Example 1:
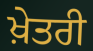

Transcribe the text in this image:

ਖ਼ੇਤਰੀ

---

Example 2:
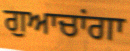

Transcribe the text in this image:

ਗੁਆਚਾਂਗਾ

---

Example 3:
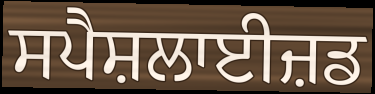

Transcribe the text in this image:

ਸਪੈਸ਼ਲਾਈਜ਼ਡ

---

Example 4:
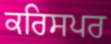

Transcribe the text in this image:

ਕਰਿਸਪਰ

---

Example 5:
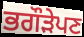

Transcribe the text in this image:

ਭਗੌੜੇਪਣ